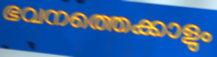
ഭവനത്തെക്കാളും